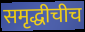
समृद्धीचीच